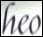
heo